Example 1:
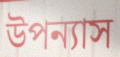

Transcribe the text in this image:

উপন্যাস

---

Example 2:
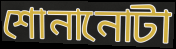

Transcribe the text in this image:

শোনানোটা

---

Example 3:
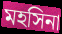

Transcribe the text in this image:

মহসিনা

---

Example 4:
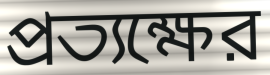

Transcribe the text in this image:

প্রত্যক্ষের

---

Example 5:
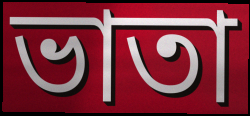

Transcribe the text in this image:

ভাতা